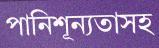
পানিশূন্যতাসহ